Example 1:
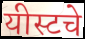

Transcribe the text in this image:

यीस्टचे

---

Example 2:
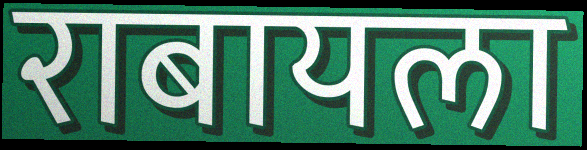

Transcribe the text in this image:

राबायला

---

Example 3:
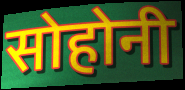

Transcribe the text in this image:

सोहोनी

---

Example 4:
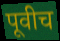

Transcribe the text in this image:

पूवीच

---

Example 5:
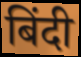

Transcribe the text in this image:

बिंदी